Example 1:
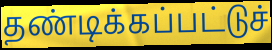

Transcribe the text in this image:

தண்டிக்கப்பட்டுச்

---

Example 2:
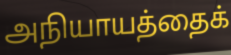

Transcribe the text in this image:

அநியாயத்தைக்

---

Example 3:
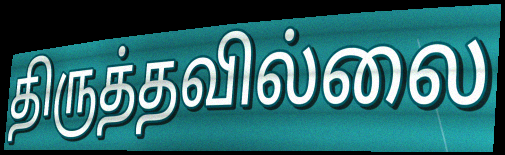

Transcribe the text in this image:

திருத்தவில்லை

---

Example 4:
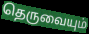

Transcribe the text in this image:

தெருவையும்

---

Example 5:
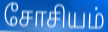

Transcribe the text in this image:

சோசியம்